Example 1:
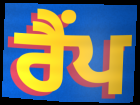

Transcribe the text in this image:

ਰੈਂਪ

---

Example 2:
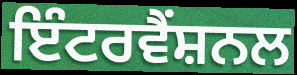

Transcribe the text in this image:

ਇੰਟਰਵੈਂਸ਼ਨਲ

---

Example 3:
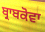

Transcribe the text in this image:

ਬ੍ਰਾਬਕੋਵਾ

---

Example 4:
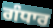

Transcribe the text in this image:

ਗੰਧਾਰ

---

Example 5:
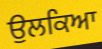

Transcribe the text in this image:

ਉਲਕਿਆ